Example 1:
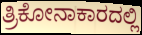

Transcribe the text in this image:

ತ್ರಿಕೋನಾಕಾರದಲ್ಲಿ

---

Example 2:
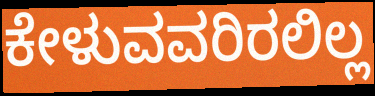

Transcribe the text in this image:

ಕೇಳುವವರಿರಲಿಲ್ಲ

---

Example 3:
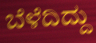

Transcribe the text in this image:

ಬೆಳೆದಿದ್ದು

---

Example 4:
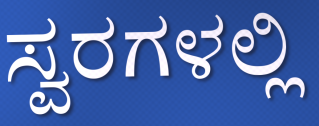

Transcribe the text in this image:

ಸ್ವರಗಳಲ್ಲಿ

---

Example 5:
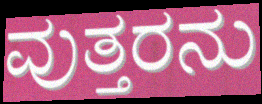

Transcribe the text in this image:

ವುತ್ತರನು